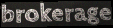
brokerage